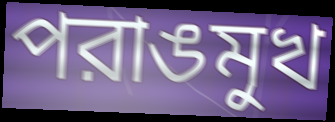
পরাঙমুখ